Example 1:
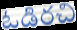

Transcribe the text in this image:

ఓడిరచి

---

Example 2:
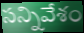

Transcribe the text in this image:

సన్నివేశం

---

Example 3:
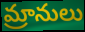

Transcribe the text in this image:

మ్రానులు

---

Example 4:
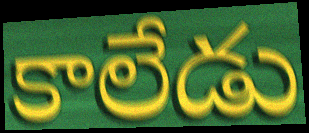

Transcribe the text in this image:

కాలేడు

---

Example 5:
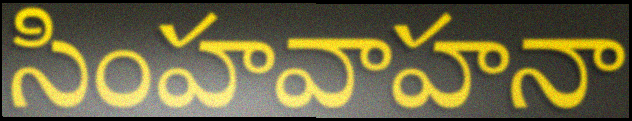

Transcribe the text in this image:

సింహవాహనా